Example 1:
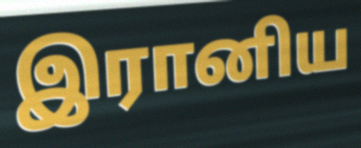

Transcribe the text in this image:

இரானிய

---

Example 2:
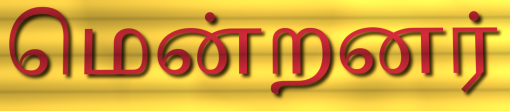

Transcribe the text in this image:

மென்றனர்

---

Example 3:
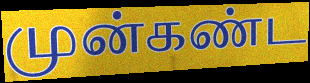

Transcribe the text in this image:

முன்கண்ட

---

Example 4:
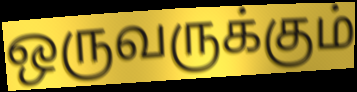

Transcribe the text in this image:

ஒருவருக்கும்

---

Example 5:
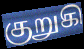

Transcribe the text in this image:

குறுகி